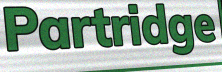
Partridge